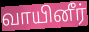
வாயினீர்